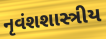
નૃવંશશાસ્ત્રીય